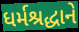
ધર્મશ્રદ્ધાને